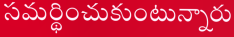
సమర్థించుకుంటున్నారు